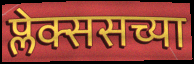
प्लेक्ससच्या